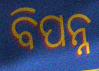
ବିପନ୍ନ